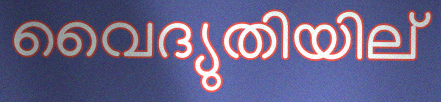
വൈദ്യുതിയില്